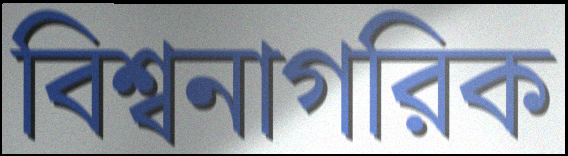
বিশ্বনাগরিক